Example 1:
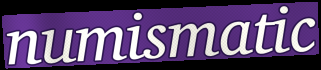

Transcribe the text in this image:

numismatic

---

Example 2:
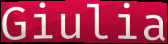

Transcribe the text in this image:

Giulia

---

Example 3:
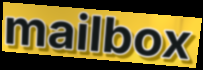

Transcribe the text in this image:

mailbox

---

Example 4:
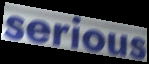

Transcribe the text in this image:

serious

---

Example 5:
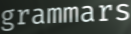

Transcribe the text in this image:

grammars